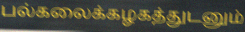
பல்கலைக்கழகத்துடனும்